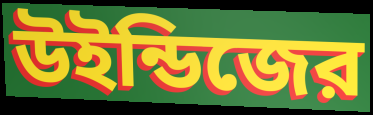
উইন্ডিজের